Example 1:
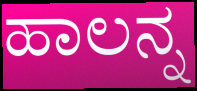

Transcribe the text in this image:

ಹಾಲನ್ನ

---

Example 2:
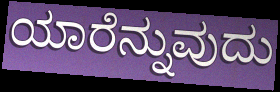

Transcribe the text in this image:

ಯಾರೆನ್ನುವುದು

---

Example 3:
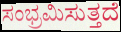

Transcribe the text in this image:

ಸಂಭ್ರಮಿಸುತ್ತದೆ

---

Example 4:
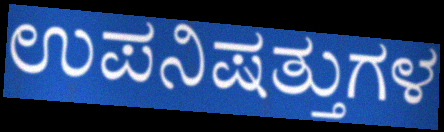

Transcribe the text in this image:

ಉಪನಿಷತ್ತುಗಳ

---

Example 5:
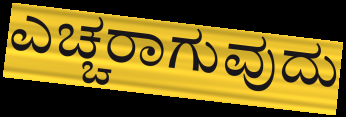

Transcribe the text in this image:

ಎಚ್ಚರಾಗುವುದು